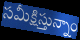
సమీక్షిస్తున్నాం